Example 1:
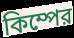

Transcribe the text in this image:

কিম্পের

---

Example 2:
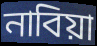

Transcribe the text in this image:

নাবিয়া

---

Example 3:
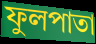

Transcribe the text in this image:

ফুলপাতা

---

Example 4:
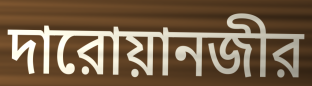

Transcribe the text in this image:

দারোয়ানজীর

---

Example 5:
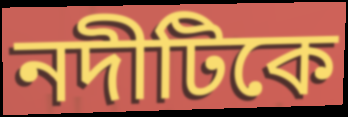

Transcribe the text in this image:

নদীটিকে